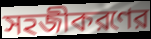
সহজীকরণের